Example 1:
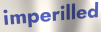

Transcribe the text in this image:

imperilled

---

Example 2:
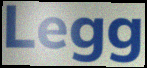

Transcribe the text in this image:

Legg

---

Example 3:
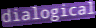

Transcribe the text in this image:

dialogical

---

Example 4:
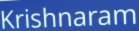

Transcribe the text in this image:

Krishnaram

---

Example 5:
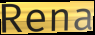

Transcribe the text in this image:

Rena